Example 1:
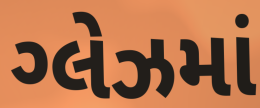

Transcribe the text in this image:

ગ્લેઝમાં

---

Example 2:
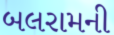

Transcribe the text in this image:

બલરામની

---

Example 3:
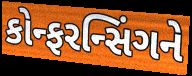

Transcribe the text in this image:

કોન્ફરન્સિંગને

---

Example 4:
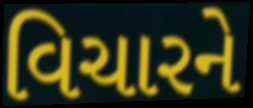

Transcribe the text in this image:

વિચારને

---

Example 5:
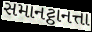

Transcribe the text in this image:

સમાનટ્ઠાનત્તા